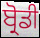
ਬ੍ਰੋਡੀ